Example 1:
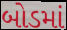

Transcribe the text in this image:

બોડમાં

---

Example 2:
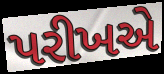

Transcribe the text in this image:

પરીખએ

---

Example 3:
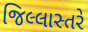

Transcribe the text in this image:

જિલ્લાસ્તરે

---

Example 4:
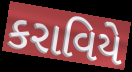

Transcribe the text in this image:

કરાવિયે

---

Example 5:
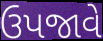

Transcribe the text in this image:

ઉપજાવે